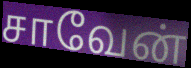
சாவேன்